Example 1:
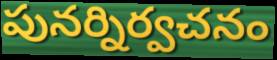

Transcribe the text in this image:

పునర్నిర్వచనం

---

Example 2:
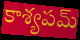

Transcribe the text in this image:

కాశ్యపమ్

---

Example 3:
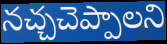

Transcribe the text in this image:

నచ్చచెప్పాలని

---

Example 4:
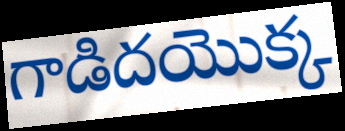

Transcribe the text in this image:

గాడిదయొక్క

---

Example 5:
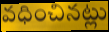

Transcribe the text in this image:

వధించినట్లు